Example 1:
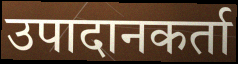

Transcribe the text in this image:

उपादानकर्ता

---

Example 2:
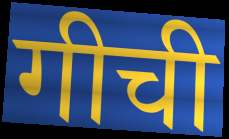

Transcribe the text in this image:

गीची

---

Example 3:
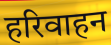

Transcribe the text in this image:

हरिवाहन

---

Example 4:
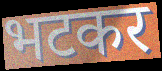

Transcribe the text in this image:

भटकर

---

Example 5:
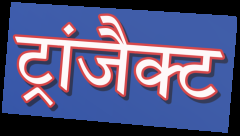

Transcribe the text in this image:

ट्रांजैक्ट